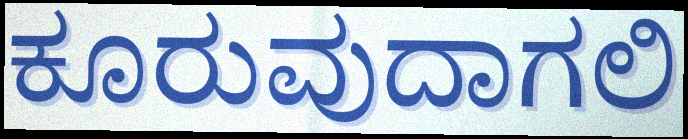
ಕೂರುವುದಾಗಲಿ